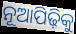
ନୂଆପିଢ଼ିକୁ